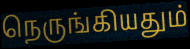
நெருங்கியதும்